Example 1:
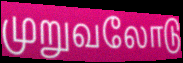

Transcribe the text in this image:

முறுவலோடு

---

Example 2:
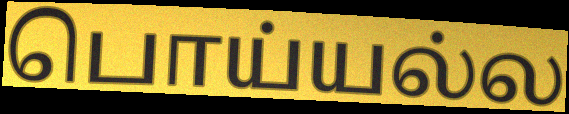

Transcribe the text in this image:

பொய்யல்ல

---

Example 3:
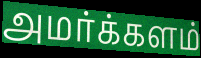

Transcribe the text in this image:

அமர்க்களம்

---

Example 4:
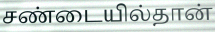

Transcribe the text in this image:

சண்டையில்தான்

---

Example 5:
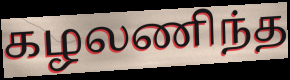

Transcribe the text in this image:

கழலணிந்த